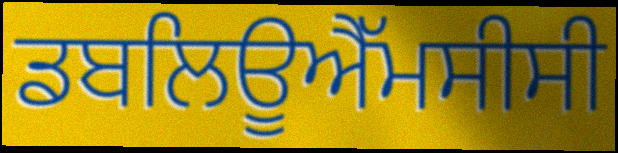
ਡਬਲਿਊਐੱਮਸੀਸੀ